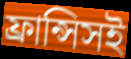
ফ্রান্সিসই